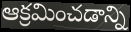
ఆక్రమించడాన్ని